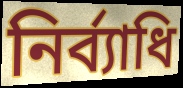
নির্ব্যাধি